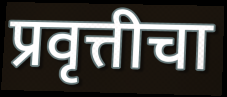
प्रवृत्तीचा